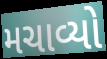
મચાવ્યો